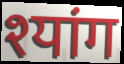
श्यांग